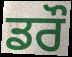
ਡਰੌ